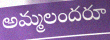
అమ్మలందరూ